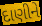
દાણીને